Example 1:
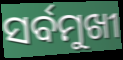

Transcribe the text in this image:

ସର୍ବମୁଖୀ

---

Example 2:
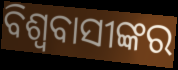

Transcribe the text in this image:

ବିଶ୍ୱବାସୀଙ୍କର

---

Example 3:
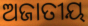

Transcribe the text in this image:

ଅଜାତୀୟ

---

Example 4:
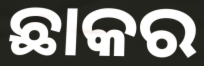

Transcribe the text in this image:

ଛାକର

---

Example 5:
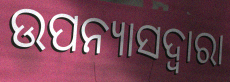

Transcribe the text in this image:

ଉପନ୍ୟାସଦ୍ୱାରା